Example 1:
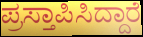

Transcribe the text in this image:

ಪ್ರಸ್ತಾಪಿಸಿದ್ದಾರೆ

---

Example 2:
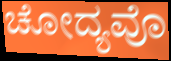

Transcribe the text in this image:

ಚೋದ್ಯವೊ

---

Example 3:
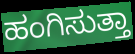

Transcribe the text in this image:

ಹಂಗಿಸುತ್ತಾ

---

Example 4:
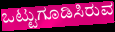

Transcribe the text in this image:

ಒಟ್ಟುಗೂಡಿಸಿರುವ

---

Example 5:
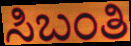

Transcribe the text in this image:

ಸಿಬಂತಿ